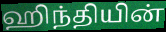
ஹிந்தியின்